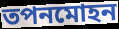
তপনমোহন